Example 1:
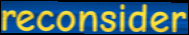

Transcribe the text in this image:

reconsider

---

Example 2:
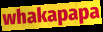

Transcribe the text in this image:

whakapapa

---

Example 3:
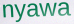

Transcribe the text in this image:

nyawa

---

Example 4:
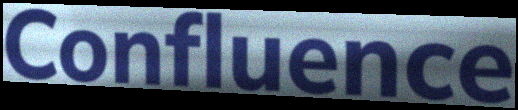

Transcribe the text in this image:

Confluence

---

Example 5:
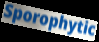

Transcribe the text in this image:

Sporophytic